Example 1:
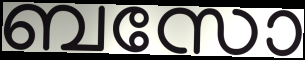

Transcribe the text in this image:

ബസോ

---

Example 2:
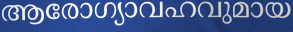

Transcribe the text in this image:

ആരോഗ്യാവഹവുമായ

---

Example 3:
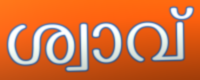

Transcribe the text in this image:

ശ്വാവ്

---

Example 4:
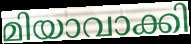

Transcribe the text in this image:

മിയാവാക്കി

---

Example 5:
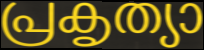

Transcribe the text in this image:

പ്രകൃത്യാ